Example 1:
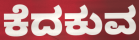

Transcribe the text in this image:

ಕೆದಕುವ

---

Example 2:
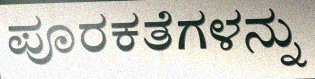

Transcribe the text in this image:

ಪೂರಕತೆಗಳನ್ನು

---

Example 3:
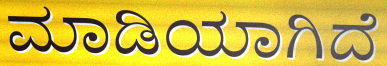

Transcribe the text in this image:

ಮಾಡಿಯಾಗಿದೆ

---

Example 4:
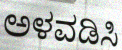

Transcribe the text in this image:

ಅಳವಡಿಸಿ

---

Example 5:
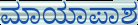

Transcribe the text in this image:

ಮಾಯಾಪಾಶ